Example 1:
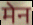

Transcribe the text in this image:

मेन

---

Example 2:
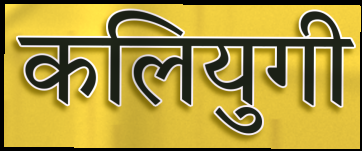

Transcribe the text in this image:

कलियुगी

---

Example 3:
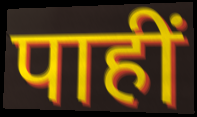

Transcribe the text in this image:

पाहीं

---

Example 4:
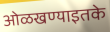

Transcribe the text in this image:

ओळखण्याइतके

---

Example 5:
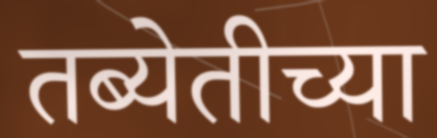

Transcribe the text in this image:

तब्येतीच्या